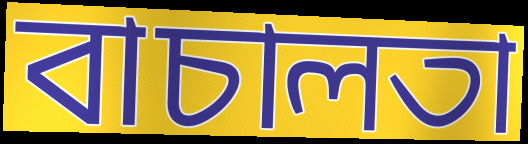
বাচালতা